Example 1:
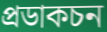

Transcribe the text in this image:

প্ৰডাকচন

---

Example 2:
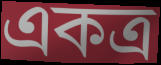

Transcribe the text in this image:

একত্ৰ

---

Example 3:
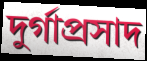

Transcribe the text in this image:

দুৰ্গাপ্ৰসাদ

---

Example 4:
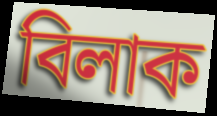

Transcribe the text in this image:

বিলাক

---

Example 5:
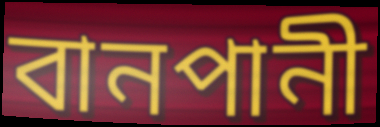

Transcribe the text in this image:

বানপানী